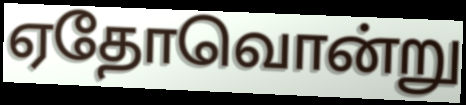
ஏதோவொன்று